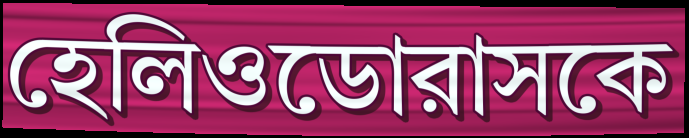
হেলিওডোরাসকে